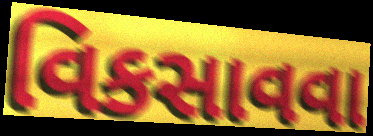
વિકસાવવા